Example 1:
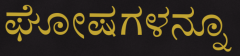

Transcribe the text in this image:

ಘೋಷಗಳನ್ನೂ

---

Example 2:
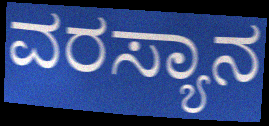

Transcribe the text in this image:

ವರಸ್ಯಾನ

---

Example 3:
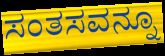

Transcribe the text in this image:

ಸಂತಸವನ್ನೂ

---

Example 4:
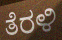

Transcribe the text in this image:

ತೆರಳಿ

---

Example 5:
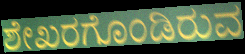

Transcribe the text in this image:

ಶೇಖರಗೊಂಡಿರುವ